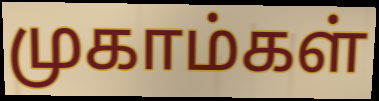
முகாம்கள்